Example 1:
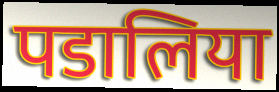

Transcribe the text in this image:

पडालिया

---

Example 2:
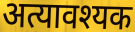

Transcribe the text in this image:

अत्यावश्यक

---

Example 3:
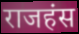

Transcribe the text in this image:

राजहंस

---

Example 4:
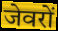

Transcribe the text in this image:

जेवरों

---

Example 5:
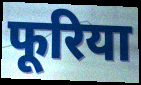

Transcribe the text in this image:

फूरिया